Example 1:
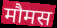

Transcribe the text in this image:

मौमस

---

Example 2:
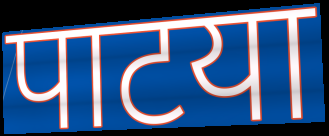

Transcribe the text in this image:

पाटया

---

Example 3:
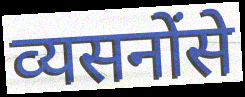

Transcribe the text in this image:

व्यसनोंसे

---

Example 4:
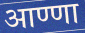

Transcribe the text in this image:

आण्णा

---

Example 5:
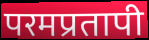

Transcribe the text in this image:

परमप्रतापी